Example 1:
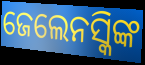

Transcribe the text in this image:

ଜେଲେନସ୍କିଙ୍କ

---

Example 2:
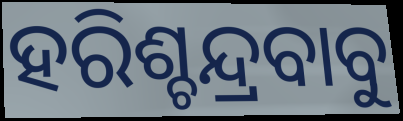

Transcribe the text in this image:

ହରିଶ୍ଚନ୍ଦ୍ରବାବୁ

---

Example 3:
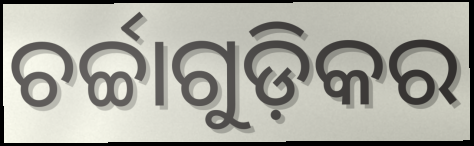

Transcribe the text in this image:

ଚର୍ଚ୍ଚାଗୁଡ଼ିକର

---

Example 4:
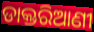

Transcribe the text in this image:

ଡାକ୍ତରିଆଣୀ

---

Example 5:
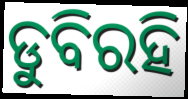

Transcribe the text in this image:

ଡୁବିରହି